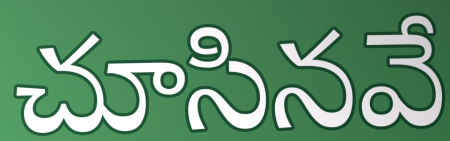
చూసినవే